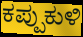
ಕಪ್ಪುಕುಳಿ